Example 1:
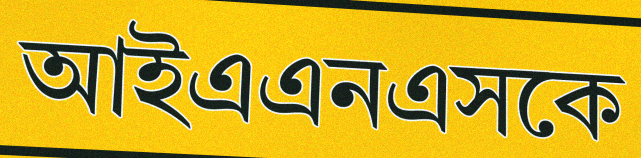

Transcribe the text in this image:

আইএএনএসকে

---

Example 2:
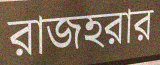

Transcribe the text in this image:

রাজহরার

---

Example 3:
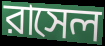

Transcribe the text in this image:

রাসেল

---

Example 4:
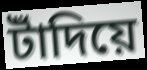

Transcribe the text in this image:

টাঁদিয়ে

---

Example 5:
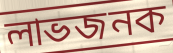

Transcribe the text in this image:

লাভজনক